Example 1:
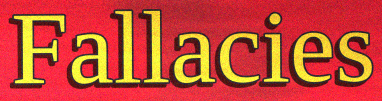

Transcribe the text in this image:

Fallacies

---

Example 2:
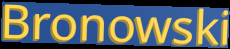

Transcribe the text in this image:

Bronowski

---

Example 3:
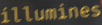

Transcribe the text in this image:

illumines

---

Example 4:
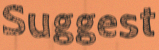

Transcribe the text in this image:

Suggest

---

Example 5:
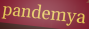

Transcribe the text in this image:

pandemya